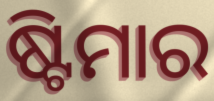
ଷ୍ଟିମାର